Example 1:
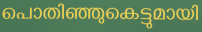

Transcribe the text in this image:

പൊതിഞ്ഞുകെട്ടുമായി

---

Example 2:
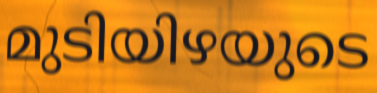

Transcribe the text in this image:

മുടിയിഴയുടെ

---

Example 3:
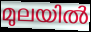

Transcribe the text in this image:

മുലയിൽ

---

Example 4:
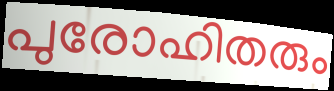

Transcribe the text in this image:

പുരോഹിതരും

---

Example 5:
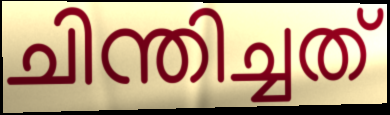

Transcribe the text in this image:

ചിന്തിച്ചത്